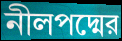
নীলপদ্মের